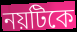
নয়টিকে